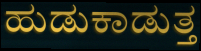
ಹುಡುಕಾಡುತ್ತ